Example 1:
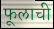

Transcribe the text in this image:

फूलाची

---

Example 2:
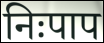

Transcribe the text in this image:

निःपाप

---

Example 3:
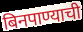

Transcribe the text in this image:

बिनपाण्याची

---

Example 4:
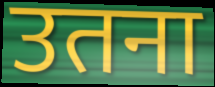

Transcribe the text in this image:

उतना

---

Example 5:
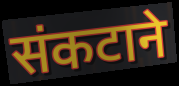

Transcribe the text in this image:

संकटाने